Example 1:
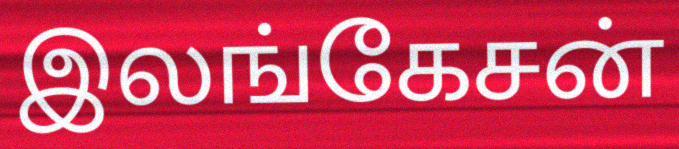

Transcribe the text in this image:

இலங்கேசன்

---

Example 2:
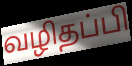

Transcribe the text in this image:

வழிதப்பி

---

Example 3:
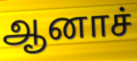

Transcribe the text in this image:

ஆனாச்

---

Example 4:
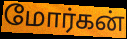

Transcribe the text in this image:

மோர்கன்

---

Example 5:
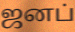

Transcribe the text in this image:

ஜனப்